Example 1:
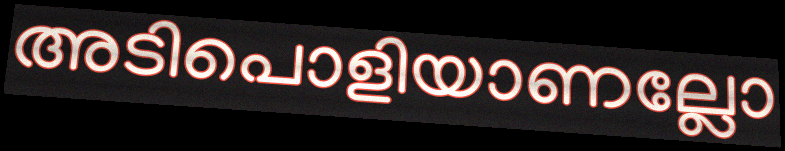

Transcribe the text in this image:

അടിപൊളിയാണല്ലോ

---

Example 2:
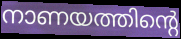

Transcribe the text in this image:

നാണയത്തിന്റെ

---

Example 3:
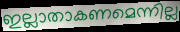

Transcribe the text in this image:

ഇല്ലാതാകണമെന്നില്ല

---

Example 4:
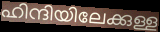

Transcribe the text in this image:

ഹിന്ദിയിലേക്കുള്ള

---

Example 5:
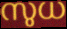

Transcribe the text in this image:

സുധ